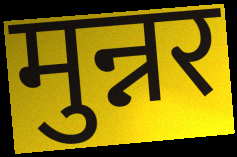
मुन्नर